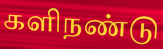
களிநண்டு